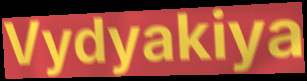
Vydyakiya